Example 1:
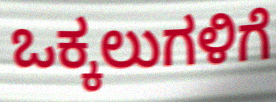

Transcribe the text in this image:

ಒಕ್ಕಲುಗಳಿಗೆ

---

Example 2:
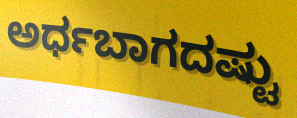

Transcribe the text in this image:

ಅರ್ಧಬಾಗದಷ್ಟು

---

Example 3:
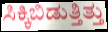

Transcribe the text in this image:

ಸಿಕ್ಕಿಬಿಡುತ್ತಿತ್ತು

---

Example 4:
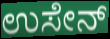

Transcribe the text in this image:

ಉಸೇನ್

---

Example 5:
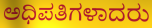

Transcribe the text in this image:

ಅಧಿಪತಿಗಳಾದರು